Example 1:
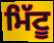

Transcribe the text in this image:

ਮਿੱਟੂ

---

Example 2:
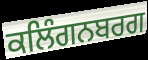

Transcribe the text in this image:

ਕਲਿੰਗਨਬਰਗ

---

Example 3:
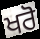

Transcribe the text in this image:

ਖਰੋ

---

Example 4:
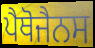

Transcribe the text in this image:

ਪੈਥੋਜੈਨਸ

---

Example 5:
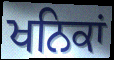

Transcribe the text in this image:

ਖਨਿਕਾਂ